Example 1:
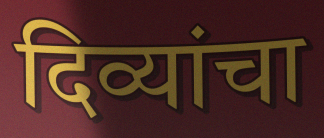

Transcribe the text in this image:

दिव्यांचा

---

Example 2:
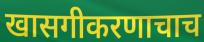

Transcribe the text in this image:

खासगीकरणाचाच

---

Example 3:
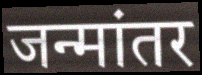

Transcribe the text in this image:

जन्मांतर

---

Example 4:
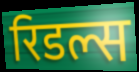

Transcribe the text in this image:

रिडल्स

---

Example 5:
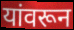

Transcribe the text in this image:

यांवरून